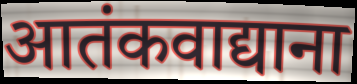
आतंकवाद्याना